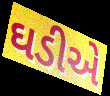
ઘડીએ